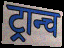
ट्रान्च